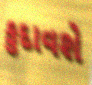
કુદાવશે